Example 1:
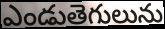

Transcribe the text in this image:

ఎండుతెగులును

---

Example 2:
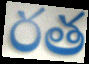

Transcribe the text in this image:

రత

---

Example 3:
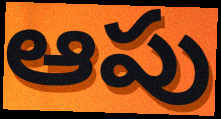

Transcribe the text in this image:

ఆపు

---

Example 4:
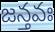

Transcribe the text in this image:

జన్తవః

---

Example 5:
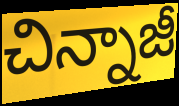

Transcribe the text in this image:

చిన్నాజీ